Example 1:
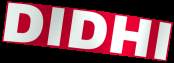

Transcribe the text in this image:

DIDHI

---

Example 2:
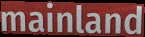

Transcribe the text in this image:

mainland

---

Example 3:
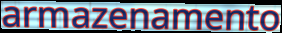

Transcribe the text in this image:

armazenamento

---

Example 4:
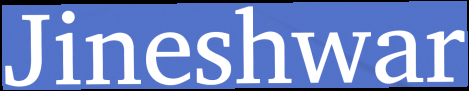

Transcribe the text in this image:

Jineshwar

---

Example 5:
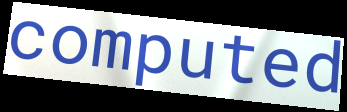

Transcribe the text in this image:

computed